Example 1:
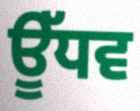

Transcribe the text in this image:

ਊੱਧਵ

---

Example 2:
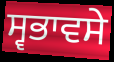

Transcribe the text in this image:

ਸ੍ਵਭਾਵਸੇ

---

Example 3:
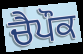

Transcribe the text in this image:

ਚੈਪੌਕ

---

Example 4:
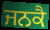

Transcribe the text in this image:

ਜਨਕੈ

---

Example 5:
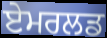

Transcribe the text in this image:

ਏਮਰਲਡ